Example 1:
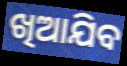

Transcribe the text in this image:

ଖିଆଯିବ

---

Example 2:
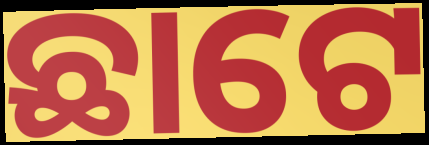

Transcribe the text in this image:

ଛାଟେ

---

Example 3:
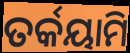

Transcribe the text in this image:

ତର୍କୟାମି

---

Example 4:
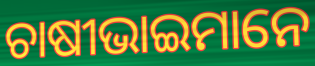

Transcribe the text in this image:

ଚାଷୀଭାଇମାନେ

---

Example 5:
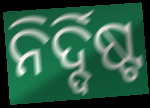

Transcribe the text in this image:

ନିର୍ଦ୍ଦିଷ୍ଟ